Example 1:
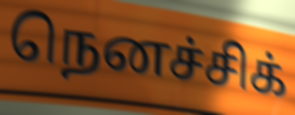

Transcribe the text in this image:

நெனச்சிக்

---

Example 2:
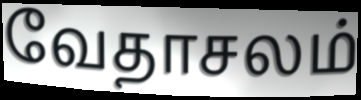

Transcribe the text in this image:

வேதாசலம்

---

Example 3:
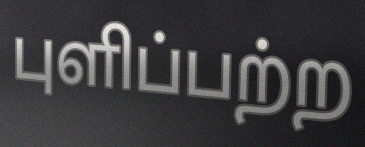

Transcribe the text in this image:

புளிப்பற்ற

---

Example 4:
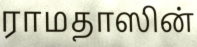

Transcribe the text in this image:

ராமதாஸின்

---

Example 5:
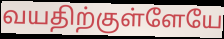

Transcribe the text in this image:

வயதிற்குள்ளேயே